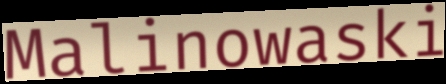
Malinowaski